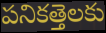
పనికత్తెలకు